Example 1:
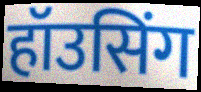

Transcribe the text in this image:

हॉउसिंग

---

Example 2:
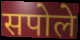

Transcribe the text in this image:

सपोले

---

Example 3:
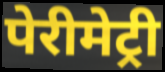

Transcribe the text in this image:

पेरीमेट्री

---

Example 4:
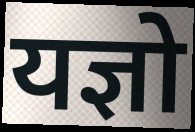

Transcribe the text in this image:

यज्ञो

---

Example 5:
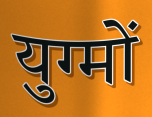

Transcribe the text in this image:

युग्मों